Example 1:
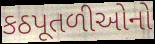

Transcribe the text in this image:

કઠપૂતળીઓનો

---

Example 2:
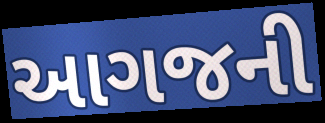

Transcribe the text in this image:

આગજની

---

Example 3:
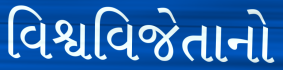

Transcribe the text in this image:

વિશ્વવિજેતાનો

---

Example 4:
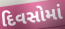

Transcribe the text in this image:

દિવસોમાં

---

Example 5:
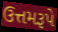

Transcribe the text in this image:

ઉત્તમરૂપે